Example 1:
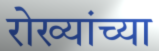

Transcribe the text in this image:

रोख्यांच्या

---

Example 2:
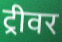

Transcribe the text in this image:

ट्रीवर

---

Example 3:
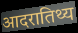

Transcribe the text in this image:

आदरातिथ्य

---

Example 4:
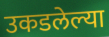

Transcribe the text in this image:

उकडलेल्या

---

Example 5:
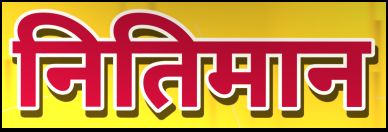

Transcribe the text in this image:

नितिमान